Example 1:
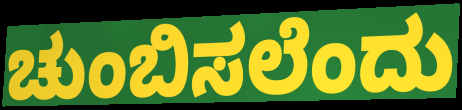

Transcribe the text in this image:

ಚುಂಬಿಸಲೆಂದು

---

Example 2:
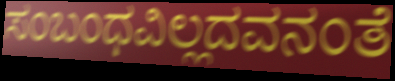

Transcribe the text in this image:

ಸಂಬಂಧವಿಲ್ಲದವನಂತೆ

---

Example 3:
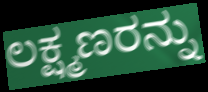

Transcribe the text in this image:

ಲಕ್ಷ್ಮಣರನ್ನು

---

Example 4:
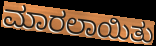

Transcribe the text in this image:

ಮಾರಲಾಯಿತು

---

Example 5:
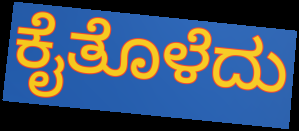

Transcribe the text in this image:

ಕೈತೊಳೆದು